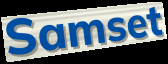
Samset